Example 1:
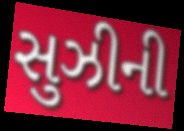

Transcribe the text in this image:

સુઝીની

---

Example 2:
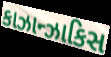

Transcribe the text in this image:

કાઝાન્ઝાકિસ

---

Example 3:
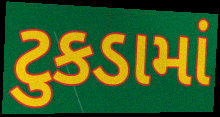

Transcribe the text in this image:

ટુકડામાં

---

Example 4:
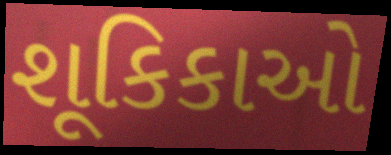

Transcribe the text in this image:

શૂકિકાઓ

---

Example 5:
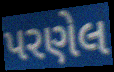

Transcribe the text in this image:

પરણેલ